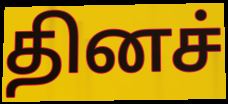
தினச்